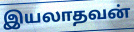
இயலாதவன்